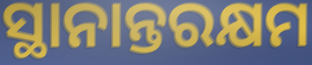
ସ୍ଥାନାନ୍ତରକ୍ଷମ